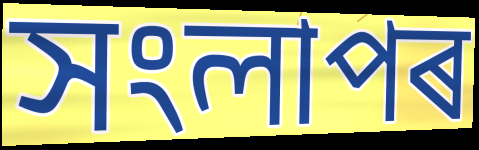
সংলাপৰ